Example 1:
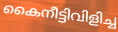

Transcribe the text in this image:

കൈനീട്ടിവിളിച്ച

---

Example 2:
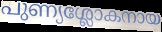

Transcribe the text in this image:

പുണ്യശ്ലോകനായ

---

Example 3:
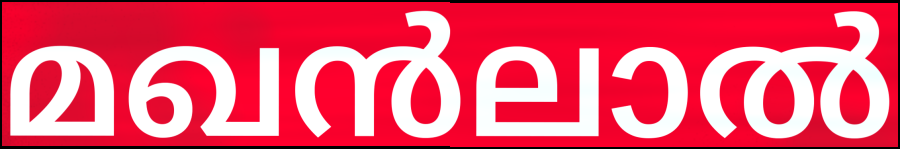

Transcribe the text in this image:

മഖൻലാൽ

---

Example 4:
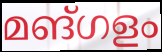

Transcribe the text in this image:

മങ്ഗളം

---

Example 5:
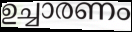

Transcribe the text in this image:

ഉച്ചാരണം